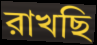
রাখছি